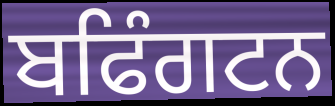
ਬਫਿੰਗਟਨ